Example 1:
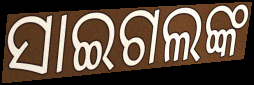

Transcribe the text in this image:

ସାଇଗଲଙ୍କ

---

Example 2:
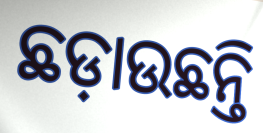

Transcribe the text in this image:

ଛଡ଼ାଉଛନ୍ତି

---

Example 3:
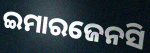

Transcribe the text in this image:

ଇମାରଜେନସି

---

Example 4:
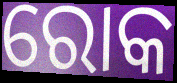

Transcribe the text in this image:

ରୋକ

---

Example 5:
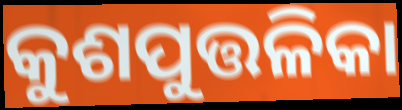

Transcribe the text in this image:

କୁଶପୁତ୍ତଳିକା